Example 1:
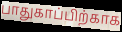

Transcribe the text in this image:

பாதுகாப்பிற்காக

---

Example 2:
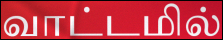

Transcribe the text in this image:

வாட்டமில்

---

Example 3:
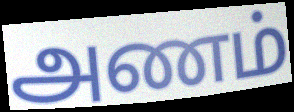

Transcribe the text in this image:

அணம்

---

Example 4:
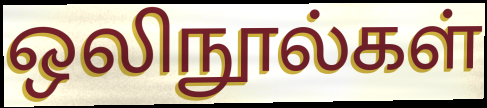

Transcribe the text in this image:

ஒலிநூல்கள்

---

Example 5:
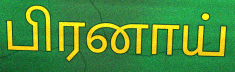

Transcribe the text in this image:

பிரனாய்